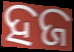
ହଜ